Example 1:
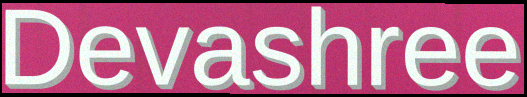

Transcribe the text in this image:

Devashree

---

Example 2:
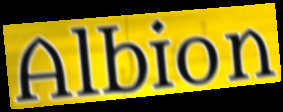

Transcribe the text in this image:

Albion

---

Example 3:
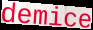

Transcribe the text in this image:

demice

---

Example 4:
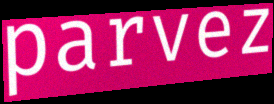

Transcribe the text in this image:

parvez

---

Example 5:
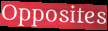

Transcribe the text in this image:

Opposites